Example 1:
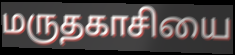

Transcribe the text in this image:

மருதகாசியை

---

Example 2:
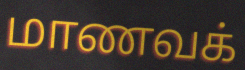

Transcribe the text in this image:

மாணவக்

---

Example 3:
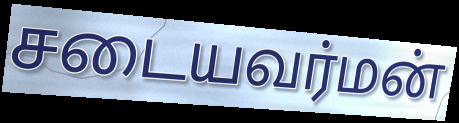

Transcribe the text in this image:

சடையவர்மன்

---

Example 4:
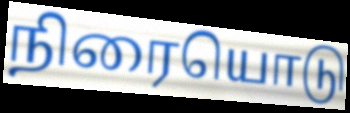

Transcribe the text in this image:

நிரையொடு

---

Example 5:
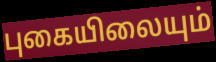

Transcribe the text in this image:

புகையிலையும்